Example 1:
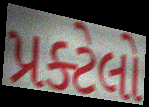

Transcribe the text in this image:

પ્રક્ટેલો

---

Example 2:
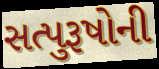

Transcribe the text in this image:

સત્પુરૂષોની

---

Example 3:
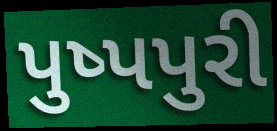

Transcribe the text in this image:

પુષ્પપુરી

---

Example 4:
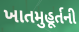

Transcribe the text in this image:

ખાતમુહૂર્તની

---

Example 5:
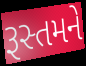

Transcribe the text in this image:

રૂસ્તમને